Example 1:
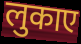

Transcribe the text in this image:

लुकाए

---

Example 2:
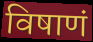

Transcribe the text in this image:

विषाणं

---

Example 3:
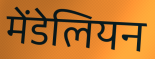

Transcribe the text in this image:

मेंडेलियन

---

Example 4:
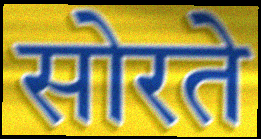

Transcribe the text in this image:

सोरते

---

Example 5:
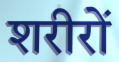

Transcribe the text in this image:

शरीरों